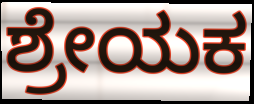
ಶ್ರೇಯಕ